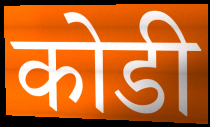
कोडी